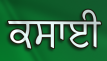
ਕਸਾਈ